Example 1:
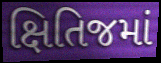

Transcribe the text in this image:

ક્ષિતિજમાં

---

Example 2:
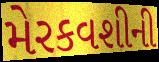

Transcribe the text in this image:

મેરકવશીની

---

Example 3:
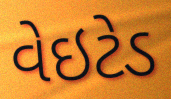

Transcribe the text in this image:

વેઇટેડ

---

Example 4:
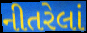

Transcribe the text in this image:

નીતરેલાં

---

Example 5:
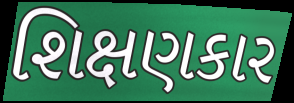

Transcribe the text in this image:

શિક્ષણકાર